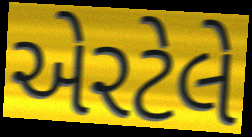
એરટેલે